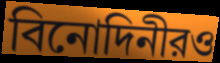
বিনোদিনীরও